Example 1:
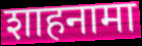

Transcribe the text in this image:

शाहनामा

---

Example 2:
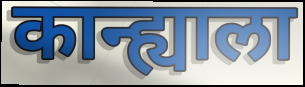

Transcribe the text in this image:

कान्ह्याला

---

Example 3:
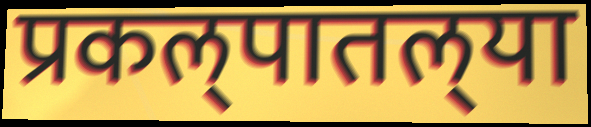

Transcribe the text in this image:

प्रकल्पातल्या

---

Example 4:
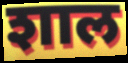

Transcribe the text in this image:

शाल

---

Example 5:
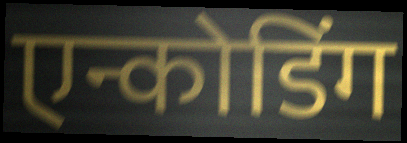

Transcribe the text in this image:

एन्कोडिंग